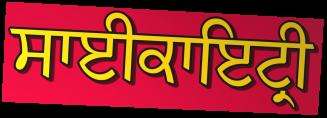
ਸਾਈਕਾਇਟ੍ਰੀ